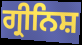
ਗ੍ਰੀਨਿਸ਼